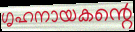
ഗൃഹനായകന്റെ